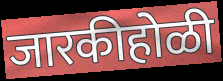
जारकीहोळी